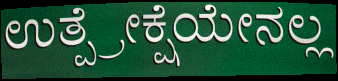
ಉತ್ಪ್ರೇಕ್ಷೆಯೇನಲ್ಲ